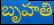
బృహతి